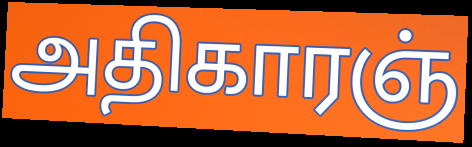
அதிகாரஞ்